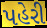
પહેરી